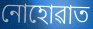
নোহোৱাত